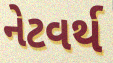
નેટવર્થ